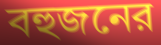
বহুজনের